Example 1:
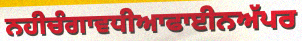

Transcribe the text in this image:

ਨਹੀਚੰਗਾਵਧੀਆਫਾਈਨਅੱਪਰ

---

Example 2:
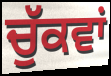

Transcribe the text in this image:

ਚੁੱਕਵਾਂ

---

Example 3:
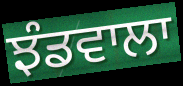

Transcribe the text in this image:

ਝੰਡਵਾਲਾ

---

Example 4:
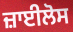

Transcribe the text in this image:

ਜ਼ਾਈਲੋਸ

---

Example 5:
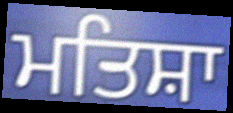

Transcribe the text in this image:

ਮਤਿਸ਼ਾ